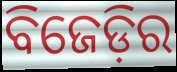
ବିଜେଡ଼ିର